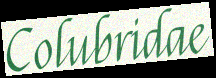
Colubridae